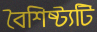
বৈশিষ্ট্যটি